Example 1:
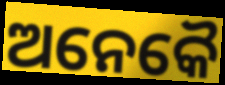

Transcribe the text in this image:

ଅନେକୈ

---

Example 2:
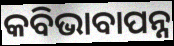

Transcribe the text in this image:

କବିଭାବାପନ୍ନ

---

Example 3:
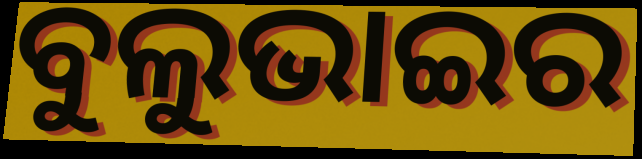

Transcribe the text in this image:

ବୁଲୁଭାଇର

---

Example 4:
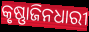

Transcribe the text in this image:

କୃଷ୍ଣାଜିନଧାରୀ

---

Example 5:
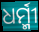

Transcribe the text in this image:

ଧର୍ମ୍ମୀ